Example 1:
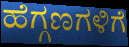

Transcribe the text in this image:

ಹೆಗ್ಗಣಗಳಿಗೆ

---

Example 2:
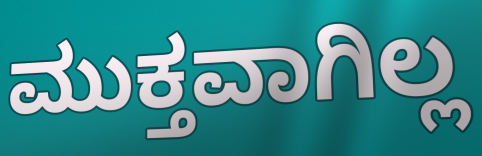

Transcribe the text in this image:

ಮುಕ್ತವಾಗಿಲ್ಲ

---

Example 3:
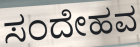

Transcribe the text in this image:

ಸಂದೇಹವ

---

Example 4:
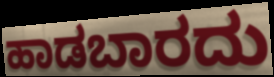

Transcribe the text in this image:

ಹಾಡಬಾರದು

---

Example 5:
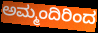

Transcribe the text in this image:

ಅಮ್ಮಂದಿರಿಂದ